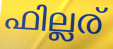
ഫില്ലര്